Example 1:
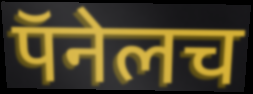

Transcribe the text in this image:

पॅनेलच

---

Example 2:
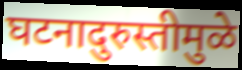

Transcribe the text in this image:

घटनादुरुस्तीमुळे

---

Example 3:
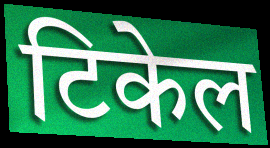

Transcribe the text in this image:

टिकेल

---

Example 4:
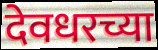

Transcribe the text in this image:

देवधरच्या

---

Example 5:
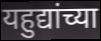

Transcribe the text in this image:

यहुद्यांच्या